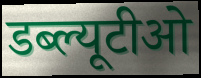
डब्ल्यूटीओ